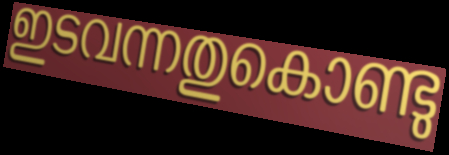
ഇടവന്നതുകൊണ്ടു